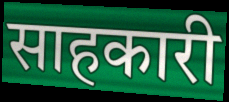
साहकारी